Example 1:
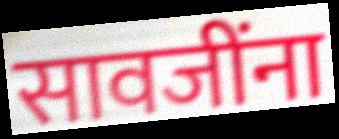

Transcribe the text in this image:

सावजींना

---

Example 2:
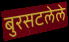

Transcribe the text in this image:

बुरसटलेले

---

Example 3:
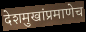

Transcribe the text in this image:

देशमुखांप्रमाणेच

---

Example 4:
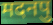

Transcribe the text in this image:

मदनपु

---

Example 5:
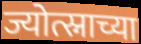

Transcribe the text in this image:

ज्योत्स्नाच्या